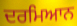
ਦਰਮਿਆਨ